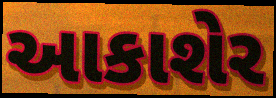
આકાશેર